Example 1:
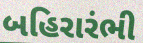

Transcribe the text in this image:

બહિરારંભી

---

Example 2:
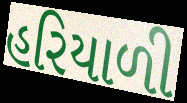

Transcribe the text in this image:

હરિયાળી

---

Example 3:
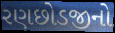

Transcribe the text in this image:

રણછોડજીનો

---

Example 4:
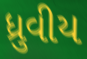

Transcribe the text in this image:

ધ્રુવીય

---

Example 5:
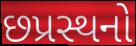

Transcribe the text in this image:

છપ્રસ્થનો